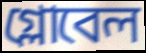
গ্লোবেল